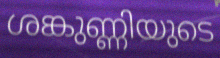
ശങ്കുണ്ണിയുടെ